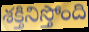
శక్తినిస్తోంది